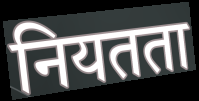
नियतता